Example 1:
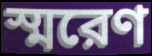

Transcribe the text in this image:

স্মরেণ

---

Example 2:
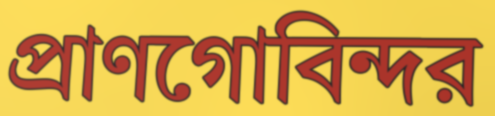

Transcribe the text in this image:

প্রাণগোবিন্দর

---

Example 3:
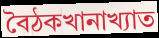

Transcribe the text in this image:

বৈঠকখানাখ্যাত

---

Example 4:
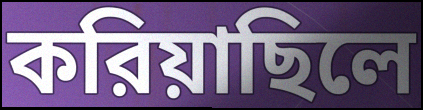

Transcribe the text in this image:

করিয়াছিলে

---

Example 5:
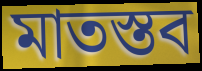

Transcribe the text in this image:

মাতস্তব